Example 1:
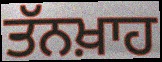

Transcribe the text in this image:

ਤੱਨਖ਼ਾਹ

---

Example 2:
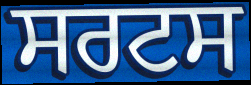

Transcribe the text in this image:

ਸਰਟਸ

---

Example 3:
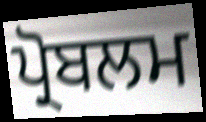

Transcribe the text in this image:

ਪ੍ਰੋਬਲਮ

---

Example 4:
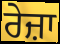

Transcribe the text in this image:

ਰੇਜ਼ਾ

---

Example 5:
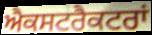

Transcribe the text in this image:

ਐਕਸਟਰੈਕਟਰਾਂ